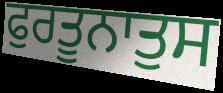
ਫੁਰਤੂਨਾਤੁਸ